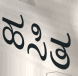
ಹಸಿತ